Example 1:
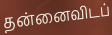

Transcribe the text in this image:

தன்னைவிடப்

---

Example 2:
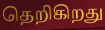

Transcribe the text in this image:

தெறிகிறது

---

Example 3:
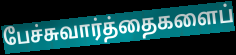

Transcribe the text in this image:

பேச்சுவார்த்தைகளைப்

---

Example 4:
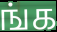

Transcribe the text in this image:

ங்க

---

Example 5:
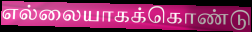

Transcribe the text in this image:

எல்லையாகக்கொண்டு